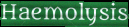
Haemolysis